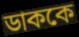
ডাককে